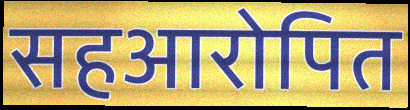
सहआरोपित